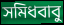
সমিধবাবু